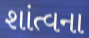
શાંત્વના